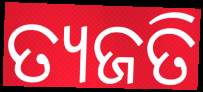
ତ୍ୟଜତି